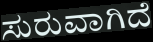
ಸುರುವಾಗಿದೆ